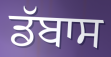
ਡੱਬਾਸ